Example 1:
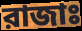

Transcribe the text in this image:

রাজাঃ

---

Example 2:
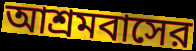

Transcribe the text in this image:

আশ্রমবাসের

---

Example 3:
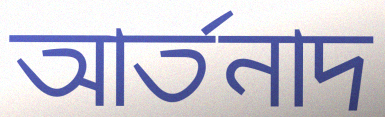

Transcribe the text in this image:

আর্তনাদ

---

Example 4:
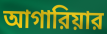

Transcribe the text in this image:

আগারিয়ার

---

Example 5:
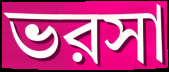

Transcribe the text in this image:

ভরসা